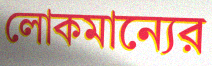
লোকমান্যের